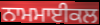
ਨਾਮਮਾਈਕਲ